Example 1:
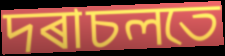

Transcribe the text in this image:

দৰাচলতে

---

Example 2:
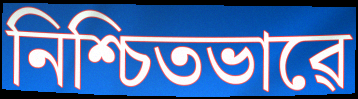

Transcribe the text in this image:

নিশ্চিতভাৱে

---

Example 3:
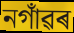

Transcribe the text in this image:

নগাঁৱৰ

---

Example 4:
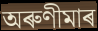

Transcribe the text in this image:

অৰুণীমাৰ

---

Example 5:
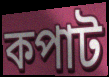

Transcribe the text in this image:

কপাট